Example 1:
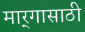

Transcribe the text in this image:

मार्गासाठी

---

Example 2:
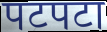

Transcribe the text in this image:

पटपटा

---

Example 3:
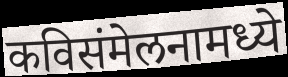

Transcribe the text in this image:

कविसंमेलनामध्ये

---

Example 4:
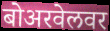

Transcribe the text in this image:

बोअरवेलवर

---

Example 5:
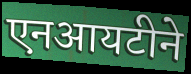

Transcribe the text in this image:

एनआयटीने